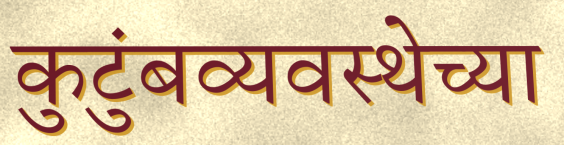
कुटुंबव्यवस्थेच्या